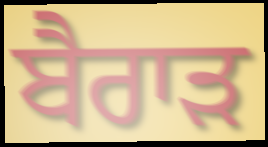
ਬੈਰਾੜ